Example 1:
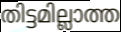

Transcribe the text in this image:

തിട്ടമില്ലാത്ത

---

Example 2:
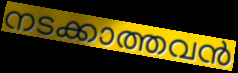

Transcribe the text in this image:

നടക്കാത്തവൻ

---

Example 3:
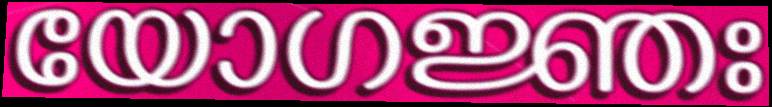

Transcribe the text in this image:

യോഗജ്ഞഃ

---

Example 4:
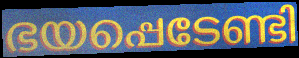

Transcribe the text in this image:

ഭയപ്പെടേണ്ടി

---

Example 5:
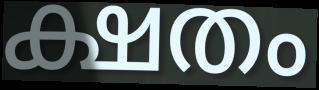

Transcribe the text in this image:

ക്ഷതം